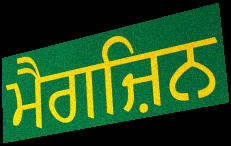
ਮੈਗਜ਼ਿਨ